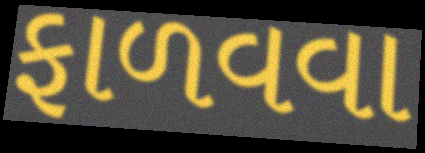
ફાળવવા